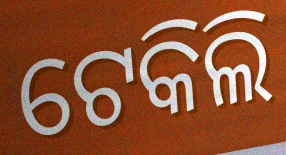
ଟେକିଲି